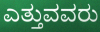
ಎತ್ತುವವರು